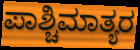
ಪಾಶ್ಚಿಮಾತ್ಯರ